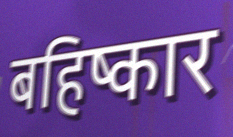
बहिष्कार